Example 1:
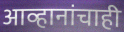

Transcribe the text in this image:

आव्हानांचाही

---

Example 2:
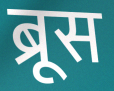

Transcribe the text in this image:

ब्रूस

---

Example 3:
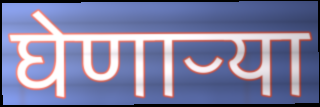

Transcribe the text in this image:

घेणाऱ्या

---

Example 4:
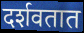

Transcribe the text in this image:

दर्शवतात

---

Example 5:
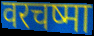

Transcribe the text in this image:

वरचष्मा